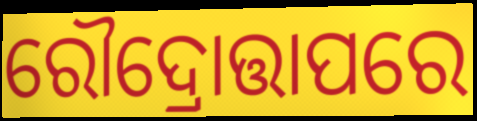
ରୌଦ୍ରୋତ୍ତାପରେ